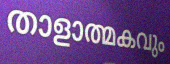
താളാത്മകവും